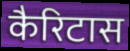
कैरिटास